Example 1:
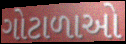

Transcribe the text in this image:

ગોટાળાઓ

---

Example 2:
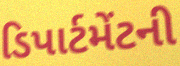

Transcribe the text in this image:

ડિપાર્ટમેંટની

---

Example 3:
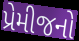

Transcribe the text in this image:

પ્રેમીજનો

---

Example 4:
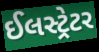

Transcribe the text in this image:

ઈલસ્ટ્રેટર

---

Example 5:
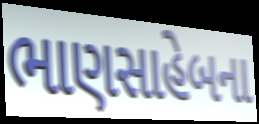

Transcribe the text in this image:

ભાણસાહેબના